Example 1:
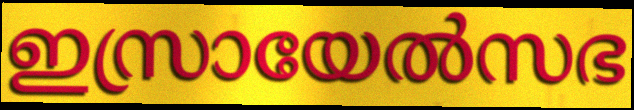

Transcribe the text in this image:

ഇസ്രായേൽസഭ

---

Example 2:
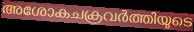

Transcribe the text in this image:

അശോകചക്രവർത്തിയുടെ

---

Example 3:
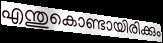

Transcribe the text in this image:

എന്തുകൊണ്ടായിരിക്കും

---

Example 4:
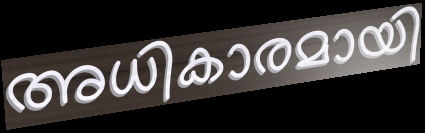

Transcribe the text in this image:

അധികാരമായി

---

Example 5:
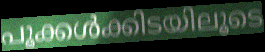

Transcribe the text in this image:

പൂക്കൾക്കിടയിലൂടെ